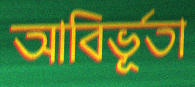
আবির্ভূতা